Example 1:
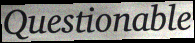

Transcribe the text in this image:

Questionable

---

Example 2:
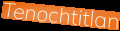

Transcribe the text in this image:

Tenochtitlan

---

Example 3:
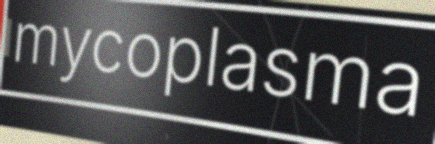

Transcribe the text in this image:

mycoplasma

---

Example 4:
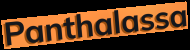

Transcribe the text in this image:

Panthalassa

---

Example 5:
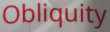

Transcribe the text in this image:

Obliquity